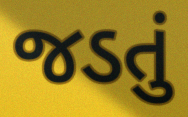
જડતું